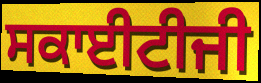
ਸਕਾਈਟੀਜੀ